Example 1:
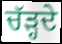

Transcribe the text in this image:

ਚੱੜ੍ਹਦੇ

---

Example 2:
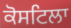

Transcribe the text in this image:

ਕੋਸਟਿਲਾ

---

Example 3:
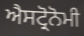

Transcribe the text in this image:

ਐਸਟ੍ਰੋਨੋਮੀ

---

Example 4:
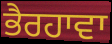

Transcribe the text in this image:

ਭੈਰਹਾਵਾ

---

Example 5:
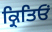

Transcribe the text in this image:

ਕ੍ਰਿਤਿਓਂ